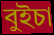
বুইচা